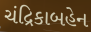
ચંદ્રિકાબહેન